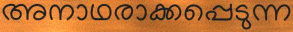
അനാഥരാക്കപ്പെടുന്ന